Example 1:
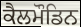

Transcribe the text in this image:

ਕੈਲਮੌਡਿਨ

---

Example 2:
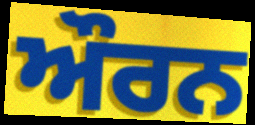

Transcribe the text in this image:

ਔਰਨ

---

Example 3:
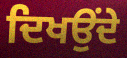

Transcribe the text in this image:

ਦਿਖਉਂਦੇ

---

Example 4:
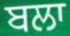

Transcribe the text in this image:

ਬਲਾ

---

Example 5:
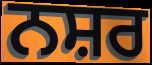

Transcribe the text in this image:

ਨਸ਼ਰ